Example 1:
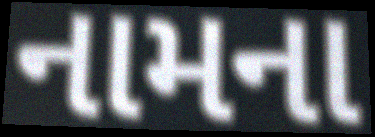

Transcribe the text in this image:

નામના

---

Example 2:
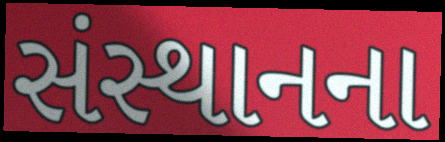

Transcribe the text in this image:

સંસ્થાનના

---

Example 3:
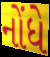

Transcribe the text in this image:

નોંધે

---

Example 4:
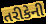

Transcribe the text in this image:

તરીકેની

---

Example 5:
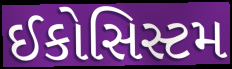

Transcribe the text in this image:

ઈકોસિસ્ટમ